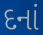
દનાં